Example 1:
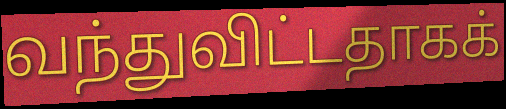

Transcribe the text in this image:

வந்துவிட்டதாகக்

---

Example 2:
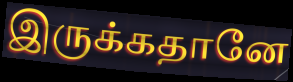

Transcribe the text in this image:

இருக்கதானே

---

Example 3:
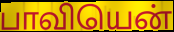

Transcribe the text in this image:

பாவியென்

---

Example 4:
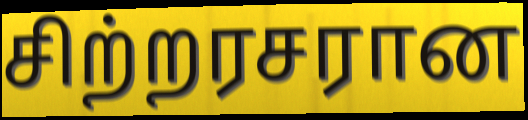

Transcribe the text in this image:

சிற்றரசரான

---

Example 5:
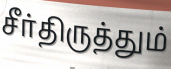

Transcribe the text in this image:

சீர்திருத்தும்